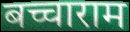
बच्चाराम